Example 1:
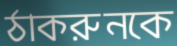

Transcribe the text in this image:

ঠাকরুনকে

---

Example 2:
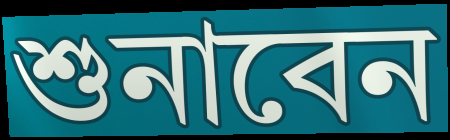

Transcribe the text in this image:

শুনাবেন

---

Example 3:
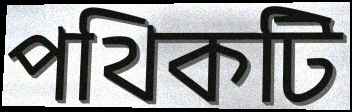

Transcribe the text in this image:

পথিকটি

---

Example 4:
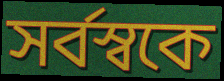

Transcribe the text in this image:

সর্বস্বকে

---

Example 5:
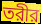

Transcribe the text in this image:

তরীর